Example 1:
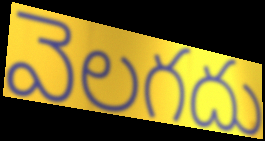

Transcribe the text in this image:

వెలగదు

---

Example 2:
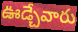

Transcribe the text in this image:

ఊడ్చేవారు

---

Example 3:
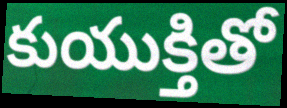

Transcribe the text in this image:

కుయుక్తితో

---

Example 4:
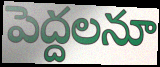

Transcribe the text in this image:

పెద్దలనూ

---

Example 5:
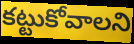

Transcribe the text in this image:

కట్టుకోవాలని